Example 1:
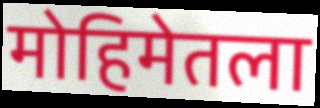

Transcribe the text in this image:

मोहिमेतला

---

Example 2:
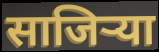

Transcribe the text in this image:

साजिर्‍या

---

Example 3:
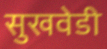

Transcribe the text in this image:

सुखवेडी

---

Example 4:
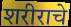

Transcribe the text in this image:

शरीराचे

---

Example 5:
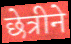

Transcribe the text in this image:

छेत्रीने